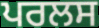
ਪਰਲਸ